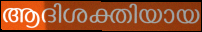
ആദിശക്തിയായ